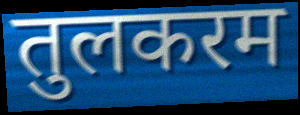
तुलकरम